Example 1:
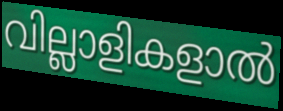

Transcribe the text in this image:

വില്ലാളികളാൽ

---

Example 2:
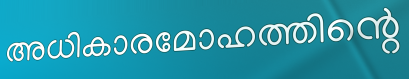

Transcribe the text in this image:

അധികാരമോഹത്തിന്റെ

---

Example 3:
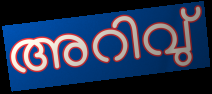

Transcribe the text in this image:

അറിവു്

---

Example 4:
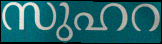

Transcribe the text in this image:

സുഹറ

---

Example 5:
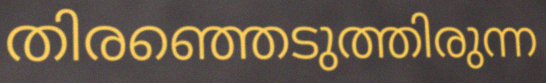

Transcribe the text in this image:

തിരഞ്ഞെടുത്തിരുന്ന